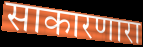
साकारणारा